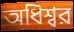
অধিশ্বর